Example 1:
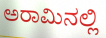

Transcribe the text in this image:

ಅರಾಮಿನಲ್ಲಿ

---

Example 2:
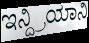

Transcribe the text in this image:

ಇನ್ದ್ರಿಯಾನಿ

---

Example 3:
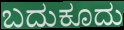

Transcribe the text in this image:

ಬದುಕೂದು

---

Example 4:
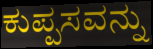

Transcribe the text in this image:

ಕುಪ್ಪಸವನ್ನು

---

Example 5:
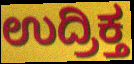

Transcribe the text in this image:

ಉದ್ರಿಕ್ತ